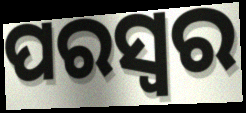
ପରସ୍ୱର